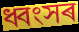
ধ্বংসৰ